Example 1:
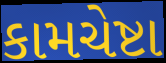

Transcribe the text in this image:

કામચેષ્ટા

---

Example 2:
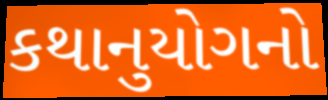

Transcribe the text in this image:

કથાનુયોગનો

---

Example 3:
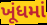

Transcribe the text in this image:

ખૂંધમાં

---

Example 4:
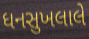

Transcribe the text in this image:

ધનસુખલાલે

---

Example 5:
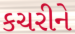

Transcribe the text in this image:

કચરીને